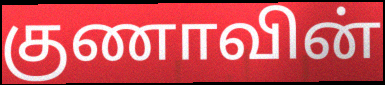
குணாவின்